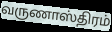
வருணாஸ்திரம்